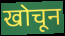
खोचून